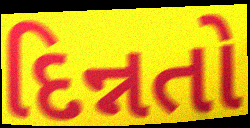
દિન્નતો